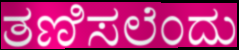
ತಣಿಸಲೆಂದು